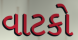
વાટકો